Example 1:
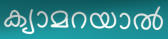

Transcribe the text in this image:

ക്യാമറയാൽ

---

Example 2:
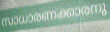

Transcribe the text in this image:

സാധാരണക്കാരനു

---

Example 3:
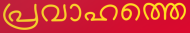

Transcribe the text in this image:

പ്രവാഹത്തെ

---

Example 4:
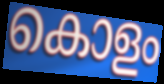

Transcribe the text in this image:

കൊളം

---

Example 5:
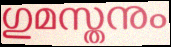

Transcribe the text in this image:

ഗുമസ്തനും